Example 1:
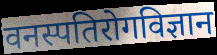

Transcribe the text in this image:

वनस्पतिरोगविज्ञान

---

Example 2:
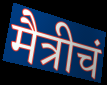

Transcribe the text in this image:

मैत्रीचं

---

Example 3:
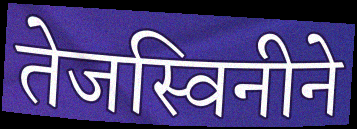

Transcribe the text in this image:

तेजस्विनीने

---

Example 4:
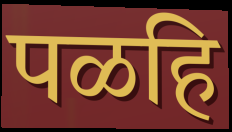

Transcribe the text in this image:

पळहि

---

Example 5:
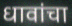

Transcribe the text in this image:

धावांचा